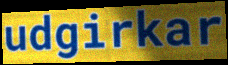
udgirkar